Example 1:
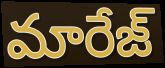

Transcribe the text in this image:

మారేజ్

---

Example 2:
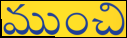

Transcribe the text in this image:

ముంచి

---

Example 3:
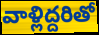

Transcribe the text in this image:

వాళ్లిద్దరితో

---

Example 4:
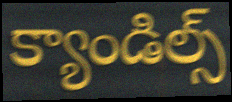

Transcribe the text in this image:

క్యాండిల్స్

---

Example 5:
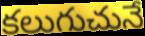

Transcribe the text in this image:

కలుగుచునే